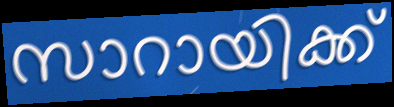
സാറായിക്ക്